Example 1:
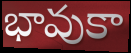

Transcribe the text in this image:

భావుకా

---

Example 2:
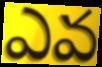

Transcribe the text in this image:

ఎవ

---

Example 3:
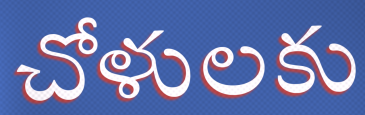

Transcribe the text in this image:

చోళులకు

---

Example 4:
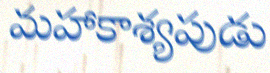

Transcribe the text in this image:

మహాకాశ్యపుడు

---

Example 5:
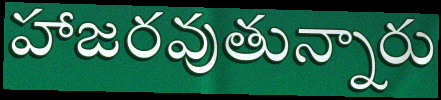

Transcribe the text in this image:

హాజరవుతున్నారు